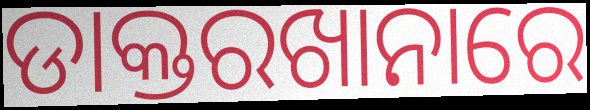
ଡାକ୍ତରଖାନାରେ